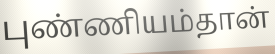
புண்ணியம்தான்